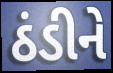
ઠંડીને